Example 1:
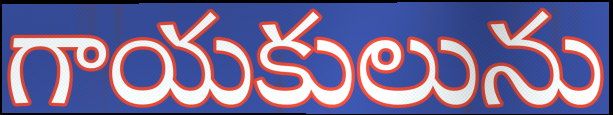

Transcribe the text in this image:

గాయకులును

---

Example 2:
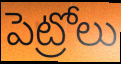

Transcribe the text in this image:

పెట్రోలు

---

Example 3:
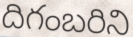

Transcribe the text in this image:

దిగంబరిని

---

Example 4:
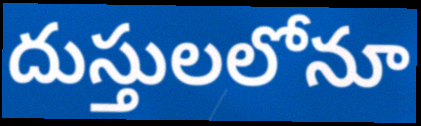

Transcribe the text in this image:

దుస్తులలోనూ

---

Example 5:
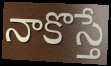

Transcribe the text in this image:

నాకొస్తే